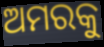
ଅମରକୁ